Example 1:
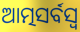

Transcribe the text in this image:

ଆତ୍ମସର୍ବସ୍ଵ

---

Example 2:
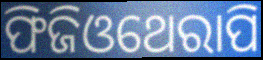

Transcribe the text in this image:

ଫିଜିଓଥେରାପି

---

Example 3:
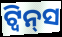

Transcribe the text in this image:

ଟ୍ବିନ୍‌ସ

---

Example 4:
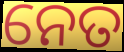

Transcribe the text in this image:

ନେତ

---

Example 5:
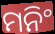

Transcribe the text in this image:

ମନିଂ